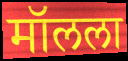
मॉलला